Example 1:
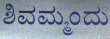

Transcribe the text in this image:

ಶಿವಮ್ಮಂದು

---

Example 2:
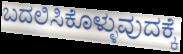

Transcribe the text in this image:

ಬದಲಿಸಿಕೊಳ್ಳುವುದಕ್ಕೆ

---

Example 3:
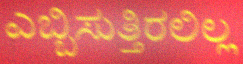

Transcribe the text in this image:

ಎಬ್ಬಿಸುತ್ತಿರಲಿಲ್ಲ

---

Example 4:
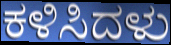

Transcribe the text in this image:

ಕಳಿಸಿದಳು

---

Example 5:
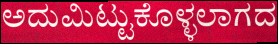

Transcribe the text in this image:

ಅದುಮಿಟ್ಟುಕೊಳ್ಳಲಾಗದ